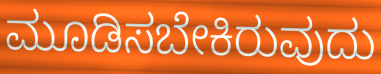
ಮೂಡಿಸಬೇಕಿರುವುದು